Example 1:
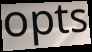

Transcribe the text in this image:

opts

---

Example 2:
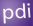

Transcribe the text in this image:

pdi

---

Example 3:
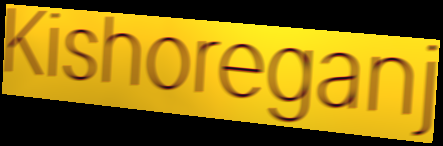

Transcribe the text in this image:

Kishoreganj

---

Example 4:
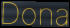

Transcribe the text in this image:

Dona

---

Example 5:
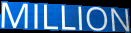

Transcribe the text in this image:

MILLION